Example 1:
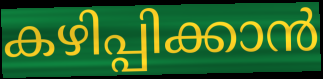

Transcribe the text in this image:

കഴിപ്പിക്കാൻ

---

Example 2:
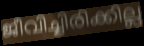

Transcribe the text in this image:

ജീവിച്ചിരിക്കില്ല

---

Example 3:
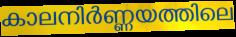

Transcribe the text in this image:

കാലനിർണ്ണയത്തിലെ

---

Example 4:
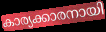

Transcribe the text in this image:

കാര്യക്കാരനായി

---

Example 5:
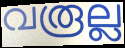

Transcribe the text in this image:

വരൂല്ല